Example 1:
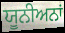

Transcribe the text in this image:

ਯੂਨੀਅਨਾਂ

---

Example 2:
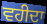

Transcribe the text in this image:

ਵਹੀਦਾ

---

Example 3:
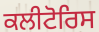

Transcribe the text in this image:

ਕਲੀਟੋਰਿਸ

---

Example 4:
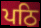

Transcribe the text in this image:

ਪਠਿ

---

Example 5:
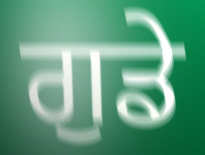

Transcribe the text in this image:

ਗੁਡੇ